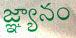
జ్ఞ్యానం